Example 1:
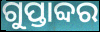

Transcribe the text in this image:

ଗୁପ୍ତାବ୍ଦର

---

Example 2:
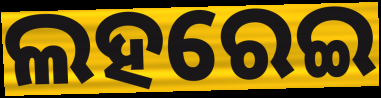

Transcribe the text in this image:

ଲହରେଇ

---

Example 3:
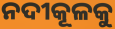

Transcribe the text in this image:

ନଦୀକୂଳକୁ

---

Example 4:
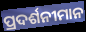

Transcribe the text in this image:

ପ୍ରଦର୍ଶନୀମାନ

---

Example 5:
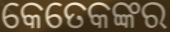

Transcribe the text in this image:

କେତେକଙ୍କର